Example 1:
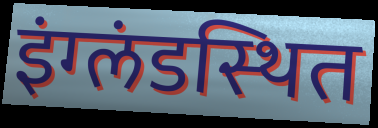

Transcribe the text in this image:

इंग्लंडस्थित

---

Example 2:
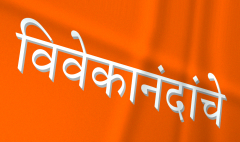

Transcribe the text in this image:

विवेकानंदांचे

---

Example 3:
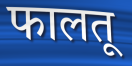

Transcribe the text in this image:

फालतू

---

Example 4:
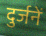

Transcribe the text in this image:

दुर्जनें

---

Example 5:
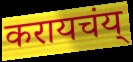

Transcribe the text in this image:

करायचंय्